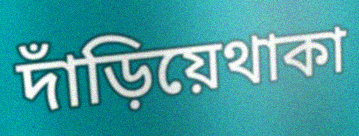
দাঁড়িয়েথাকা